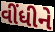
વીંધીને